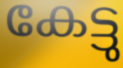
കേട്ടു